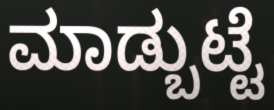
ಮಾಡ್ಬುಟ್ಟೆ